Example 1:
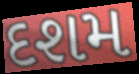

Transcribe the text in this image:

દશમ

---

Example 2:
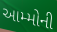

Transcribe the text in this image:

આમ્મોની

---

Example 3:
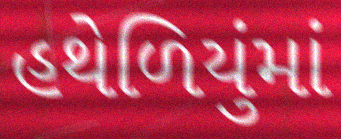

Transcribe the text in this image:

હથેળિયુંમાં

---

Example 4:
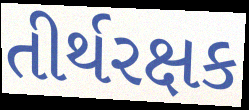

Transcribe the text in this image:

તીર્થરક્ષક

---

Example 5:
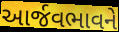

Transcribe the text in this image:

આર્જવભાવને